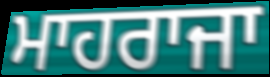
ਮਾਹਰਾਜਾ